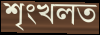
শৃংখলত